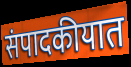
संपादकीयात